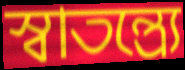
স্বাতন্ত্র্যে